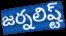
జర్నలిష్ట్